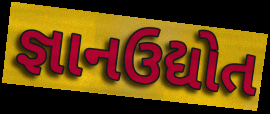
જ્ઞાનઉદ્યોત